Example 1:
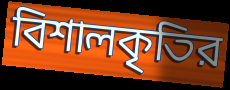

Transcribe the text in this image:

বিশালকৃতির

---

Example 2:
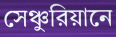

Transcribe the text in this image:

সেঞ্চুরিয়ানে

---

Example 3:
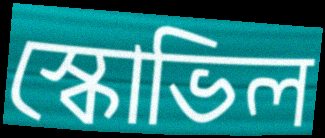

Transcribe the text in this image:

স্কোভিল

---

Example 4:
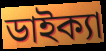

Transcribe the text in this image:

ডাইক্যা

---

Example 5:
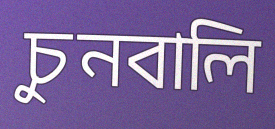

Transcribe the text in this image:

চুনবালি